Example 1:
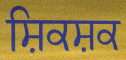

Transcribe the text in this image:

ਸ਼ਿਕਸ਼ਕ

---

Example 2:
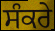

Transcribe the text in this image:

ਸੰਕਰੇ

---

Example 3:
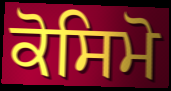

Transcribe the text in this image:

ਕੋਸਿਮੋ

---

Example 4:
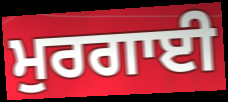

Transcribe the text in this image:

ਮੁਰਗਾਈ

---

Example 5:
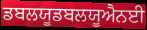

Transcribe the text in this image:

ਡਬਲਯੂਡਬਲਯੂਐਨਈ